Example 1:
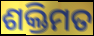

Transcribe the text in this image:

ଶକ୍ତିମତ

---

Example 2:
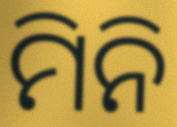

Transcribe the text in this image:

ମିନି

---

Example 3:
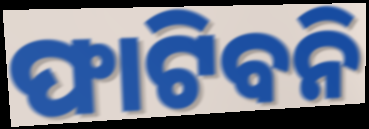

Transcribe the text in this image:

ଫାଟିବନି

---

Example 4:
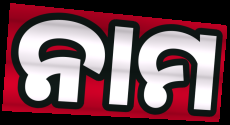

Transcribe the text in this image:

ନାମ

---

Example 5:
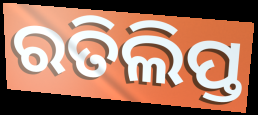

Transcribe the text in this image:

ରତିଲିପ୍ତ